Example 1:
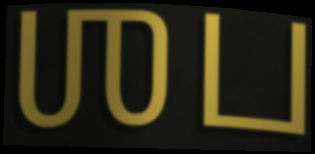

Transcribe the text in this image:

ஶப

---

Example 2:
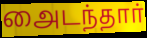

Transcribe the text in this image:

அைடந்தார்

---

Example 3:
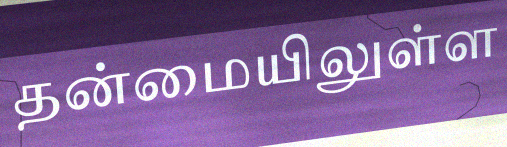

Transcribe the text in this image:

தன்மையிலுள்ள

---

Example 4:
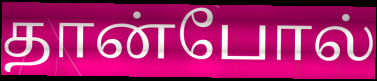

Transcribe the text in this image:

தான்போல்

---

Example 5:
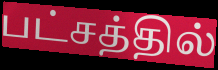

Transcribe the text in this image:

பட்சத்தில்